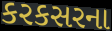
કરકસરના